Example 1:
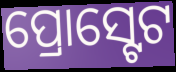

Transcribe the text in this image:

ପ୍ରୋସ୍ଟେଟ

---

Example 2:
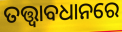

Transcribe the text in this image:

ତତ୍ତ୍ଵାବଧାନରେ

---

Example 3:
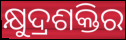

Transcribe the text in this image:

କ୍ଷୁଦ୍ରଶକ୍ତିର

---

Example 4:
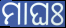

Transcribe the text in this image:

ମାଘଃ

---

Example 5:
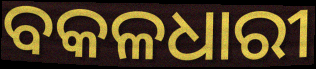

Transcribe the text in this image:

ବକଳଧାରୀ